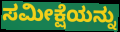
ಸಮೀಕ್ಷೆಯನ್ನು